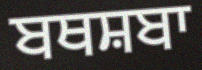
ਬਥਸ਼ਬਾ